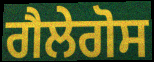
ਗੈਲੇਗੋਸ